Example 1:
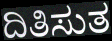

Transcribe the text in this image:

ದಿತಿಸುತ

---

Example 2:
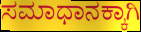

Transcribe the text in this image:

ಸಮಾಧಾನಕ್ಕಾಗಿ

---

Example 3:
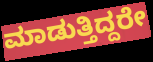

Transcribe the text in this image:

ಮಾಡುತ್ತಿದ್ದರೇ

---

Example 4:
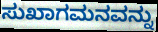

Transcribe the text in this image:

ಸುಖಾಗಮನವನ್ನು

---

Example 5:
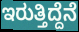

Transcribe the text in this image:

ಇರುತ್ತಿದ್ದೆನೆ